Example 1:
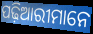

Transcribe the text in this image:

ପଢ଼ିଆରୀମାନେ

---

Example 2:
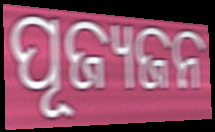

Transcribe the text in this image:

ପୂଜ୍ୟଜନ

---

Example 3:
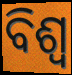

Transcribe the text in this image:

ବିଶ୍ୱ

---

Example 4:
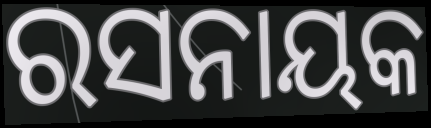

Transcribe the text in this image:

ରସନାୟକ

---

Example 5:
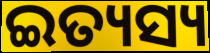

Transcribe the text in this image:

ଇତ୍ୟସ୍ୟ